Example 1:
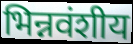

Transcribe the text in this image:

भिन्नवंशीय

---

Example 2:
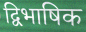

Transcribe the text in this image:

द्विभाषिक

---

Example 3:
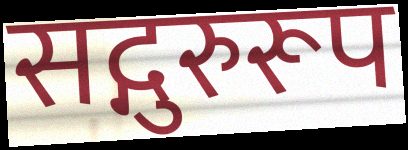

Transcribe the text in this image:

सद्गुरुरूप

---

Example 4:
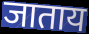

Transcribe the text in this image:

जाताय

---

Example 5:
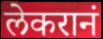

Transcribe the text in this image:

लेकरानं